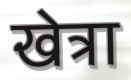
खेत्रा